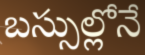
బస్సుల్లోనే